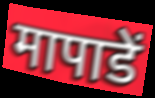
मापाडें